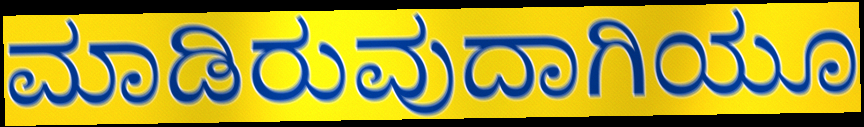
ಮಾಡಿರುವುದಾಗಿಯೂ